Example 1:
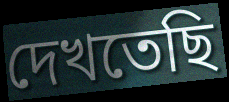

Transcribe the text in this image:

দেখতেছি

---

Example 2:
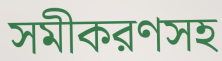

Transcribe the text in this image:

সমীকরণসহ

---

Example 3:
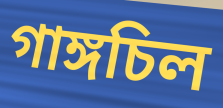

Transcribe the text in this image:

গাঙ্গচিল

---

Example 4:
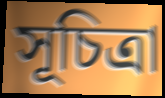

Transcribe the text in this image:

সূচিত্রা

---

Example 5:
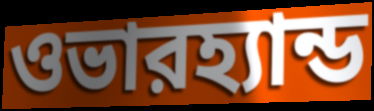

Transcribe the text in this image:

ওভারহ্যান্ড